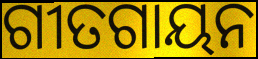
ଗୀତଗାୟନ